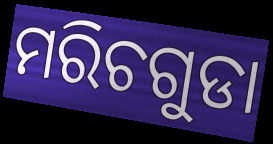
ମରିଚଗୁଡା